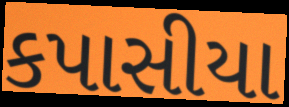
કપાસીયા